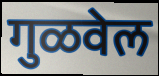
गुळवेल